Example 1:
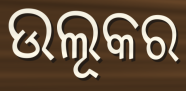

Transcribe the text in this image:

ଉଲୂକର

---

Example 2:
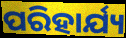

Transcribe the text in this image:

ପରିହାର୍ଯ୍ୟ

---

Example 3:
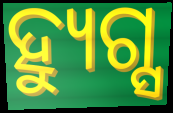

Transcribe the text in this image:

ହ୍ୟୁଗ୍ସ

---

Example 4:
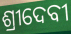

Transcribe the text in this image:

ଶ୍ରୀଦେବୀ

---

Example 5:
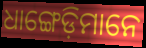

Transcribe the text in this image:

ଧାଙ୍ଗେଡ଼ିମାନେ